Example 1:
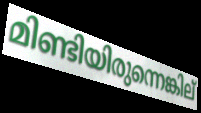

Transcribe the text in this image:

മിണ്ടിയിരുന്നെങ്കില്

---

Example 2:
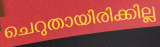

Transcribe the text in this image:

ചെറുതായിരിക്കില്ല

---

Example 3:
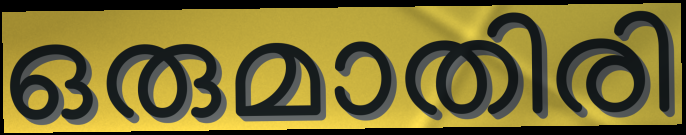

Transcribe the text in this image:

ഒരുമാതിരി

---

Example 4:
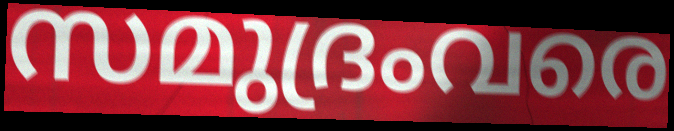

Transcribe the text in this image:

സമുദ്രംവരെ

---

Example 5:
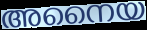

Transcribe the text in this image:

അനൈയ